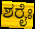
ಶರೈಃ